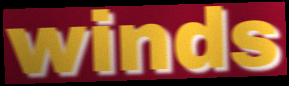
winds